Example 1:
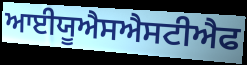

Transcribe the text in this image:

ਆਈਯੂਐਸਐਸਟੀਐਫ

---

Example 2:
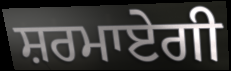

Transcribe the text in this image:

ਸ਼ਰਮਾਏਗੀ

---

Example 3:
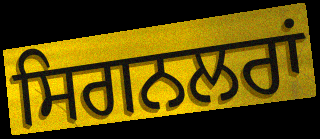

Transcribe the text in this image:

ਸਿਗਨਲਰਾਂ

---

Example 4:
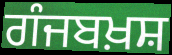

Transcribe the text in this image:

ਗੰਜਬਖ਼ਸ਼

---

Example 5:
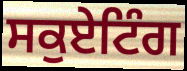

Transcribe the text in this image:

ਸਕੁਏਟਿੰਗ